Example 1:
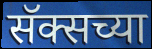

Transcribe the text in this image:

सॅक्सच्या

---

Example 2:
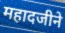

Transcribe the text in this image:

महादजीने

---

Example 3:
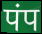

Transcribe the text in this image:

पंप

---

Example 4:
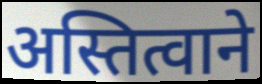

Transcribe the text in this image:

अस्तित्वाने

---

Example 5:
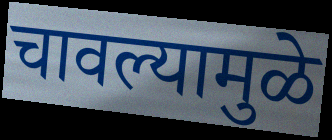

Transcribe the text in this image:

चावल्यामुळे